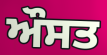
ਔਸਤ